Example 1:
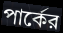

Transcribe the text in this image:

পার্কের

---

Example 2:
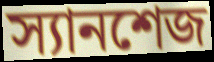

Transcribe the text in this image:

স্যানশেজ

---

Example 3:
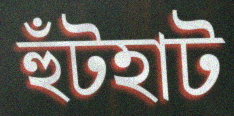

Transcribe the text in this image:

হুঁটহাট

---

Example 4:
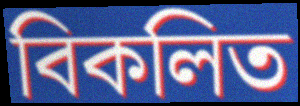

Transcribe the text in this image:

বিকলিত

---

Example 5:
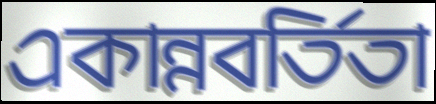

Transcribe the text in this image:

একান্নবর্তিতা